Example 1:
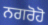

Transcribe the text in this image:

ਨਗਰੋਹੋ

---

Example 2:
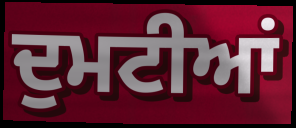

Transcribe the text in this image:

ਦੁਮਟੀਆਂ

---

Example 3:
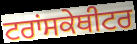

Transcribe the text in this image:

ਟਰਾਂਸਕੇਥੀਟਰ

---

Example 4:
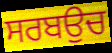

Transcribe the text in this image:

ਸਰਬਉਚ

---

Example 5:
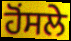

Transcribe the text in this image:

ਹੋਂਸਲੇ